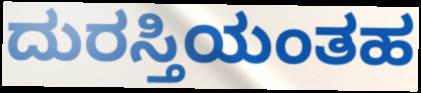
ದುರಸ್ತಿಯಂತಹ